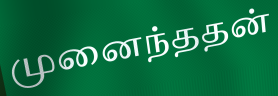
முனைந்ததன்